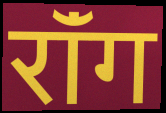
रॉंग